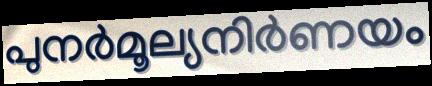
പുനർമൂല്യനിർണയം